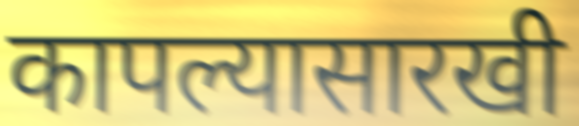
कापल्यासारखी